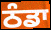
ਠੰਡਾ